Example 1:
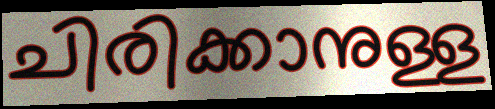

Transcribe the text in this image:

ചിരിക്കാനുള്ള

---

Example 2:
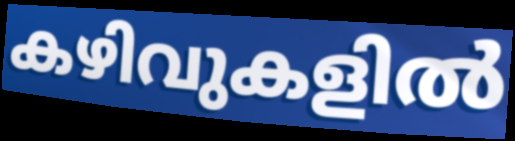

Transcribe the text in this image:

കഴിവുകളിൽ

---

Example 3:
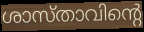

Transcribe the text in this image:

ശാസ്താവിന്റെ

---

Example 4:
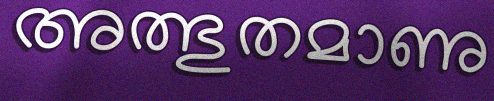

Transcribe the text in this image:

അത്ഭുതമാണു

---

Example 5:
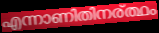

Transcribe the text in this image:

എന്നാണിതിനര്ത്ഥം